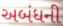
અબંધની